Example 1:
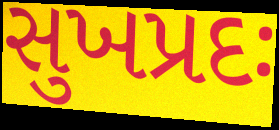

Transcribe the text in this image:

સુખપ્રદઃ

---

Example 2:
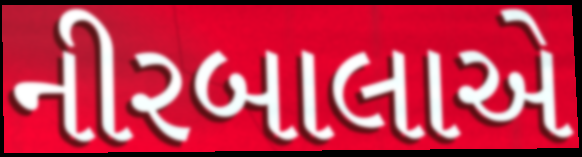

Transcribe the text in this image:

નીરબાલાએ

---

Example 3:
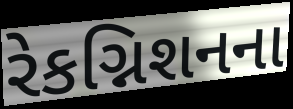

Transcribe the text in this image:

રેકગ્નિશનના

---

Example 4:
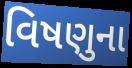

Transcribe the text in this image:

વિષણુના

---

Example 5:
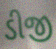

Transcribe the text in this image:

ડીજી